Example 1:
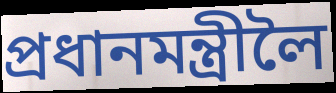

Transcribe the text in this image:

প্ৰধানমন্ত্ৰীলৈ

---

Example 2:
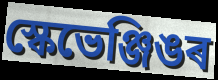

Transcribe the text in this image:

স্কেভেঞ্জিঙৰ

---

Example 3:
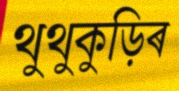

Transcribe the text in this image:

থুথুকুড়িৰ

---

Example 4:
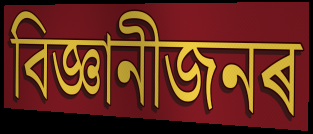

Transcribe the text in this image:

বিজ্ঞানীজনৰ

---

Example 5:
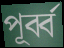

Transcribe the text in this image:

পূৰ্ব্ব